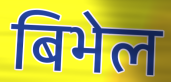
बिभेल